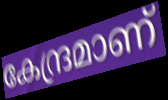
കേന്ദ്രമാണ്